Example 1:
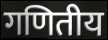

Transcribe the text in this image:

गणितीय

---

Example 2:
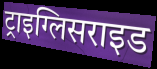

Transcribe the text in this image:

ट्राइग्लिसराइड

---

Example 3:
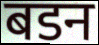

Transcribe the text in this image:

बडन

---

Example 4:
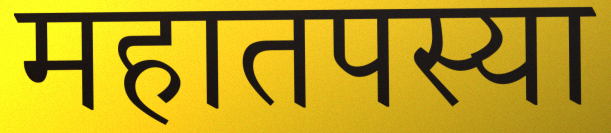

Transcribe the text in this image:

महातपस्या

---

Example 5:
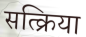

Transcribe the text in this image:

सत्क्रिया